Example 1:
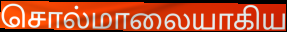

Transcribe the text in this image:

சொல்மாலையாகிய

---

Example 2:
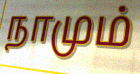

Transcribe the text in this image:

நாமும்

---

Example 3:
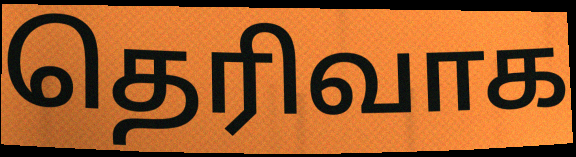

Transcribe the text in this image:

தெரிவாக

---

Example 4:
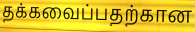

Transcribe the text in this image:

தக்கவைப்பதற்கான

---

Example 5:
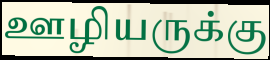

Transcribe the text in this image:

ஊழியருக்கு